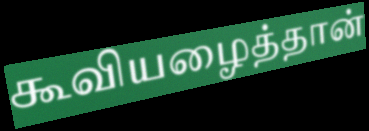
கூவியழைத்தான்